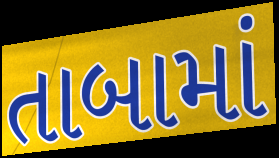
તાબામાં